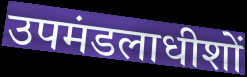
उपमंडलाधीशों